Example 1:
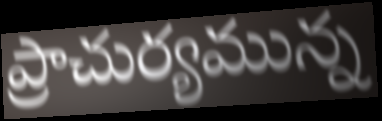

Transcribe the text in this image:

ప్రాచుర్యమున్న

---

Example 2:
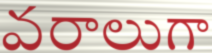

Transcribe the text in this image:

వరాలుగా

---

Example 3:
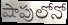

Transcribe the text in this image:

షాపులోనో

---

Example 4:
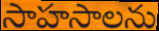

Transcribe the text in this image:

సాహసాలను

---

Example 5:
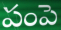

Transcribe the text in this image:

పంపె